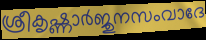
ശ്രീകൃഷ്ണാർജുനസംവാദേ